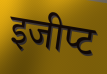
इजीप्ट